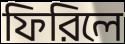
ফিরিলে